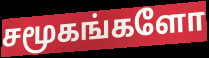
சமூகங்களோ